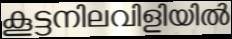
കൂട്ടനിലവിളിയിൽ